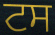
ਟਸ